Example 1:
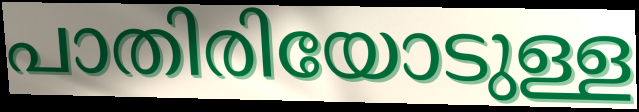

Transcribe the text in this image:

പാതിരിയോടുള്ള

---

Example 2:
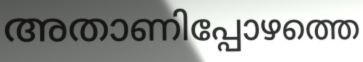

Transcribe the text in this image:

അതാണിപ്പോഴത്തെ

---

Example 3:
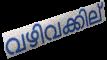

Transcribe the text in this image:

വഴിവക്കില്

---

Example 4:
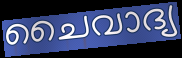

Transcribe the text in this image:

ചൈവാദ്യ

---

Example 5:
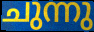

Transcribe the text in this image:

ചുന്നു